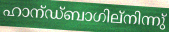
ഹാന്ഡ്ബാഗില്നിന്നു്